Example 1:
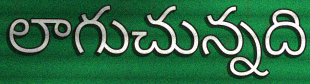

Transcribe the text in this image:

లాగుచున్నది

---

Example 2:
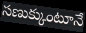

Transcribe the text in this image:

సణుక్కుంటూనే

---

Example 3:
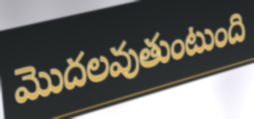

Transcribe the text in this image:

మొదలవుతుంటుంది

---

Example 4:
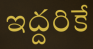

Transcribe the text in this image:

ఇద్దరికే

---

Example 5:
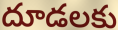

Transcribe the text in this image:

దూడలకు